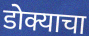
डोक्याचा